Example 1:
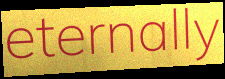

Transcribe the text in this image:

eternally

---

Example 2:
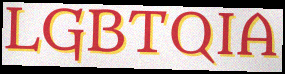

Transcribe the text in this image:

LGBTQIA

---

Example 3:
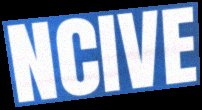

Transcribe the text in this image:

NCIVE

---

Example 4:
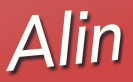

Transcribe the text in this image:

Alin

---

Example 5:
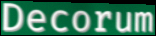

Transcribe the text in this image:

Decorum